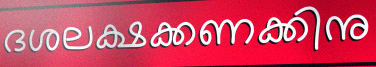
ദശലക്ഷക്കണക്കിനു